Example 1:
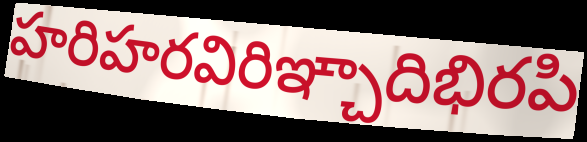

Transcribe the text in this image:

హరిహరవిరిఞ్చాదిభిరపి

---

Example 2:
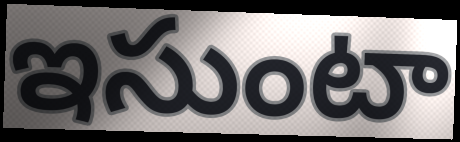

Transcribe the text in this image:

ఇసుంటా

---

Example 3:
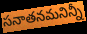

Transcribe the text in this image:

సనాతనమనిన్నీ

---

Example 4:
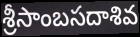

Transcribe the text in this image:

శ్రీసాంబసదాశివ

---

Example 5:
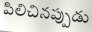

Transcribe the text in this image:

పిలిచినప్పుడు